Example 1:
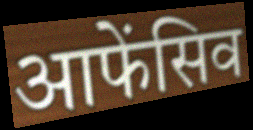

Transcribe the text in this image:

आफेंसिव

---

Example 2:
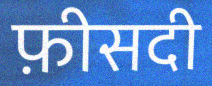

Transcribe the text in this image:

फ़ीसदी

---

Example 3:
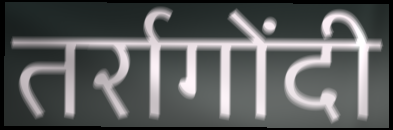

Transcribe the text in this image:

तर्रागोंदी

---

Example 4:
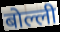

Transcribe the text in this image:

बोल्ली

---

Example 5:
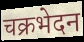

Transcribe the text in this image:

चक्रभेदन